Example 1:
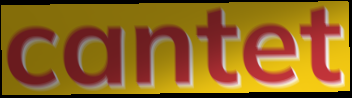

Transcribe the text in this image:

cantet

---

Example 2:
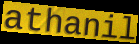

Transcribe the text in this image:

athanil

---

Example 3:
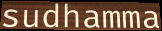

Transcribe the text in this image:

sudhamma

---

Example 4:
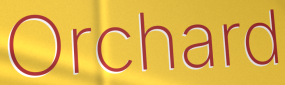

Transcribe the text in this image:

Orchard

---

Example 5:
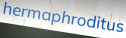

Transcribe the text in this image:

hermaphroditus